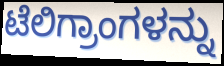
ಟೆಲಿಗ್ರಾಂಗಳನ್ನು